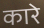
कारे